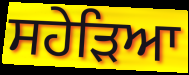
ਸਹੇੜਿਆ